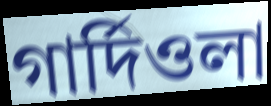
গার্দিওলা